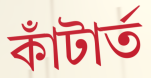
কাঁটার্ত